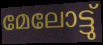
മേലോട്ടു്